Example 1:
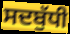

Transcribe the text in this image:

ਸਦਬੁੱਧੀ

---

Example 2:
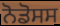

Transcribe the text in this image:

ਨੋਡੋਸਸ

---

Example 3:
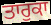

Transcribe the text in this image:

ਤਾਰੁਕਾ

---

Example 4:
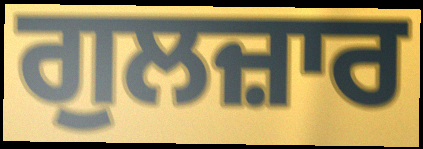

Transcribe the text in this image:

ਗੁਲਜ਼ਾਰ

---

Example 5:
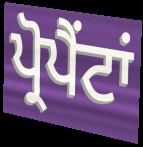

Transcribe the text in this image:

ਪ੍ਰੋਪੈਂਟਾਂ